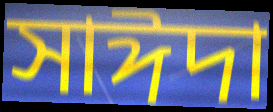
সাঈদা